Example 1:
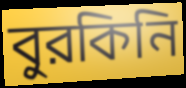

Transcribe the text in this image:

বুরকিনি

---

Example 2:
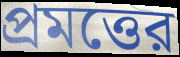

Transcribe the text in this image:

প্রমত্তের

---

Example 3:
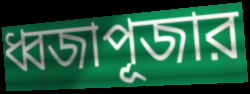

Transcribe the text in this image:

ধ্বজাপূজার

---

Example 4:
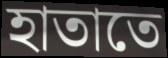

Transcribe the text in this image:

হাতাতে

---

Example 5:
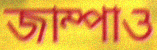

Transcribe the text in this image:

জাম্পাও